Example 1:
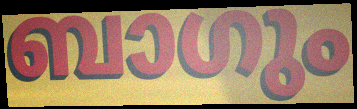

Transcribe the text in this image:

ബാഗും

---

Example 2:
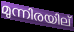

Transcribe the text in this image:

മുന്നിരയില്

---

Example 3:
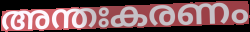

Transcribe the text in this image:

അന്തഃകരണം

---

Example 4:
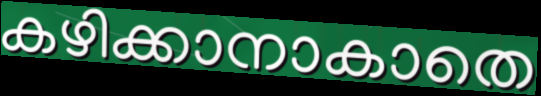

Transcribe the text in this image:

കഴിക്കാനാകാതെ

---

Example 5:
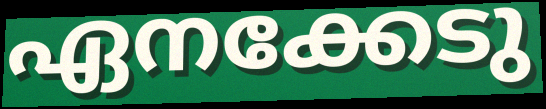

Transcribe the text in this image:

ഏനക്കേടു